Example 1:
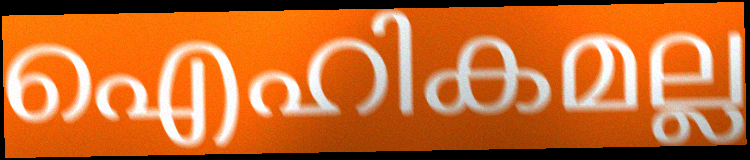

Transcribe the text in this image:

ഐഹികമല്ല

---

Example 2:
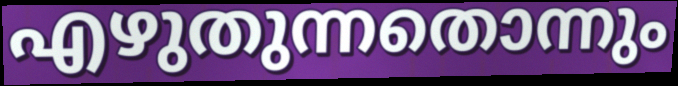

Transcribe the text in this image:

എഴുതുന്നതൊന്നും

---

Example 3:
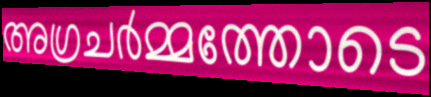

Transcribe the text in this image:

അഗ്രചർമ്മത്തോടെ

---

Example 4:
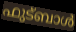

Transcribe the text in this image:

ഫുട്ബാൾ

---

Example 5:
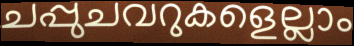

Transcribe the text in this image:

ചപ്പുചവറുകളെല്ലാം